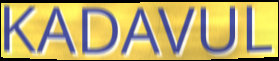
KADAVUL